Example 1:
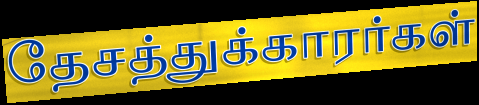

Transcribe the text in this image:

தேசத்துக்காரர்கள்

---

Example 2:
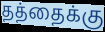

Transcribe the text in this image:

தத்தைக்கு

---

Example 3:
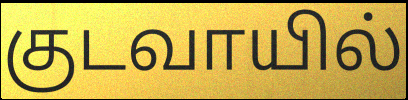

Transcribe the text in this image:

குடவாயில்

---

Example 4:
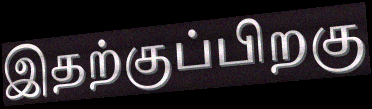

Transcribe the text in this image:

இதற்குப்பிறகு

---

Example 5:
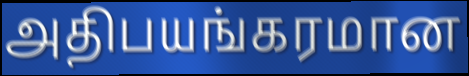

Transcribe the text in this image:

அதிபயங்கரமான